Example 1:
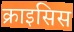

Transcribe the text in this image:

क्राइसिस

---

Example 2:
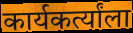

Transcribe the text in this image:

कार्यकर्त्यांला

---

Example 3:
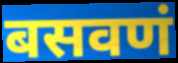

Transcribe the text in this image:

बसवणं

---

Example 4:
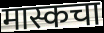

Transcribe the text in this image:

मास्कचा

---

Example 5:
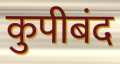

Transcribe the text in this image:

कुपीबंद